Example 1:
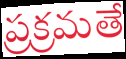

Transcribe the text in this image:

ప్రక్రమతే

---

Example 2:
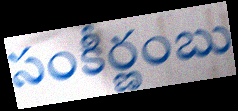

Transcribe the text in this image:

సంకీర్ణంబు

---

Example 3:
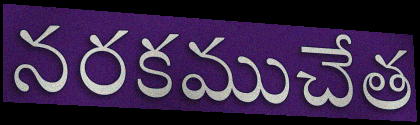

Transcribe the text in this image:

నరకముచేత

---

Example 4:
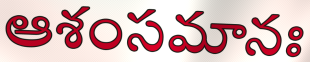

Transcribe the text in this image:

ఆశంసమానః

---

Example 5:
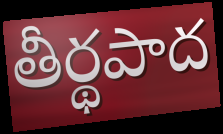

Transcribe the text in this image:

తీర్థపాద